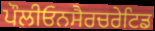
ਪੌਲੀਓਨਸੈਰਚਰੇਟਿਡ